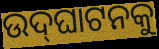
ଉଦ୍‌ଘାଟନକୁ